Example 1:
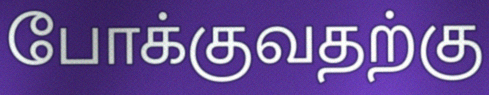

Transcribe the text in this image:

போக்குவதற்கு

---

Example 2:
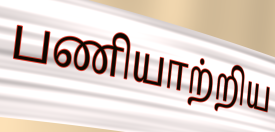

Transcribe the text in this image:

பணியாற்றிய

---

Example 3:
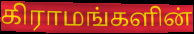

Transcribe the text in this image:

கிராமங்களின்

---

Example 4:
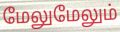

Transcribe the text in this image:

மேலுமேலும்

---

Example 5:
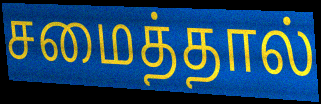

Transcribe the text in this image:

சமைத்தால்